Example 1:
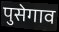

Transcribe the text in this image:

पुसेगाव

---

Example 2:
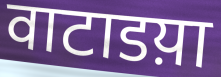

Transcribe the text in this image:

वाटाडय़ा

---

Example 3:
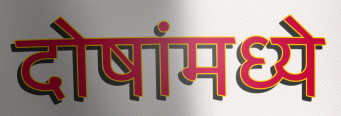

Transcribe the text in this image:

दोषांमध्ये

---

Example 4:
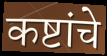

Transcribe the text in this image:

कष्टांचे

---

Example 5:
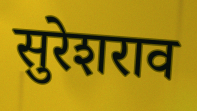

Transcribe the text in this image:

सुरेशराव